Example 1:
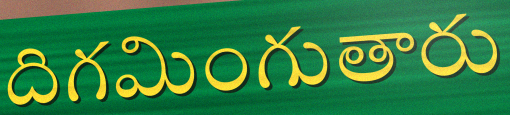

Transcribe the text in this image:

దిగమింగుతారు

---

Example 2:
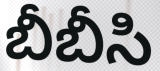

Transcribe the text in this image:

బీబీసి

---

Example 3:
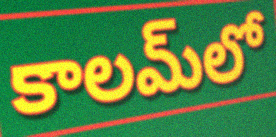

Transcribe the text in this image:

కాలమ్‍లో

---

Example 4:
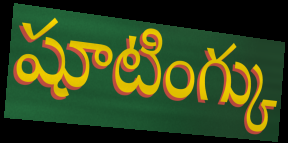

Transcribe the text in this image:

షూటింగ్కు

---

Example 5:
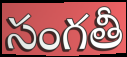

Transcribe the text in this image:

సంగతీ